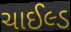
ચાઈલ્ડ